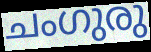
ചംഗുരു